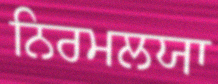
ਨਿਰਮਲਯਾ